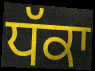
ਧੱਕਾ